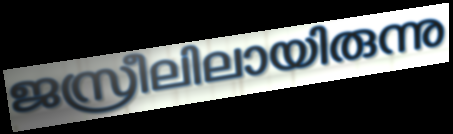
ജസ്രീലിലായിരുന്നു